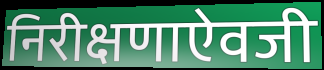
निरीक्षणाऐवजी